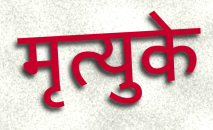
मृत्युके